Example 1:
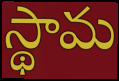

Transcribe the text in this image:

స్థామ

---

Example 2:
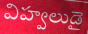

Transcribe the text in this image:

విహ్వలుడై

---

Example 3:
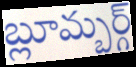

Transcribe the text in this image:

బ్లూమ్బర్గ్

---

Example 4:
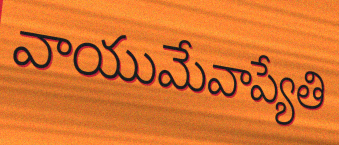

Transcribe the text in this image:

వాయుమేవాప్యేతి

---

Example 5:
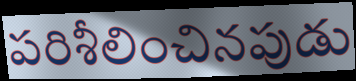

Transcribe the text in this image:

పరిశీలించినపుడు